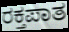
ರಕ್ತಪಾತ